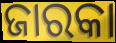
ଜାରକା